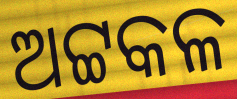
ଅଟ୍ଟକଳ